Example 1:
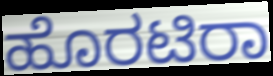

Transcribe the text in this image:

ಹೊರಟಿರಾ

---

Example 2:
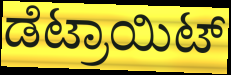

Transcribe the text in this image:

ಡೆಟ್ರಾಯಿಟ್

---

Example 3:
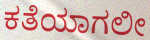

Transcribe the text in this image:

ಕತೆಯಾಗಲೀ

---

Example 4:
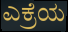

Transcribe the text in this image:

ಎಕ್ರೆಯ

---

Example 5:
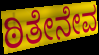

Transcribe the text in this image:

ಠಿತೇನೇವ